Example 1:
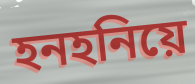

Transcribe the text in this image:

হনহনিয়ে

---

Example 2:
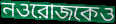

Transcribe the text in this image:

নওরোজকেও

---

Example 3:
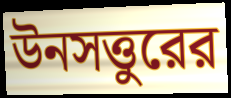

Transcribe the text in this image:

উনসত্তুরের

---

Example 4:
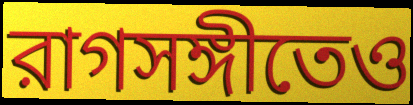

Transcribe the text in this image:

রাগসঙ্গীতেও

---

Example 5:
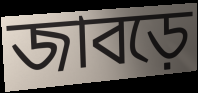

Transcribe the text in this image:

জাবড়ে